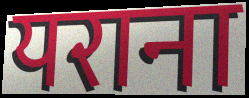
यराना